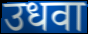
उधवा